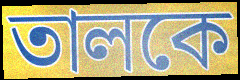
তালকে